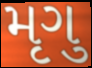
મૃગુ